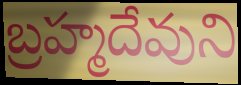
బ్రహ్మదేవుని